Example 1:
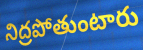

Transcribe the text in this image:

నిద్రపోతుంటారు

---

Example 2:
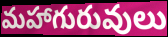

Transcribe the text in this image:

మహాగురువులు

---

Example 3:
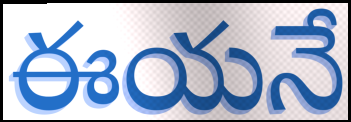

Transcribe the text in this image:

ఈయనే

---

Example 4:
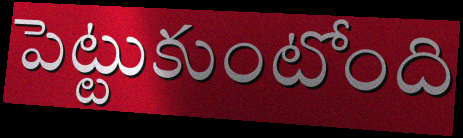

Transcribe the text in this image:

పెట్టుకుంటోంది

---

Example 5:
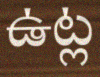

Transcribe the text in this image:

ఉట్ల